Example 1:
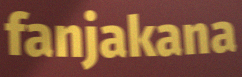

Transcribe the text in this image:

fanjakana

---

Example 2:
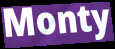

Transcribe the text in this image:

Monty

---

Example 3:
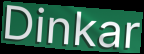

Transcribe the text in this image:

Dinkar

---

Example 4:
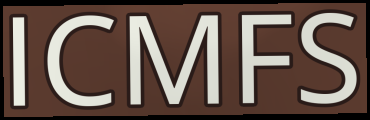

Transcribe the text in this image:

ICMFS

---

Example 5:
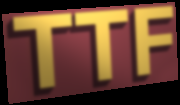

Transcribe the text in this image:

TTF